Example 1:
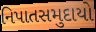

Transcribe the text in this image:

નિપાતસમુદાયો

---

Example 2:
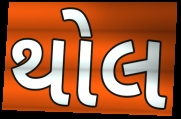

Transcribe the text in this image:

થોલ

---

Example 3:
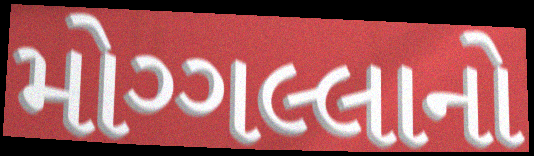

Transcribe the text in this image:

મોગ્ગલ્લાનો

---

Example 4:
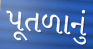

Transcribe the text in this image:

પૂતળાનું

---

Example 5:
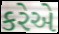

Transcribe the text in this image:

કરેએ